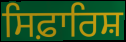
ਸਿਫ਼ਾਰਿਸ਼